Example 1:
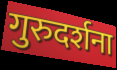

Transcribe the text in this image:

गुरुदर्शना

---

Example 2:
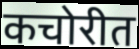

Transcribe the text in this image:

कचोरीत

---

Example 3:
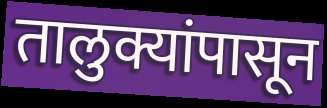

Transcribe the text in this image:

तालुक्यांपासून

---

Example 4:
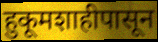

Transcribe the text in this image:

हुकूमशाहीपासून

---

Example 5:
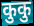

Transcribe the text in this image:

कुकु